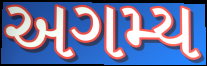
અગમ્ય